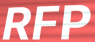
RFP